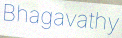
Bhagavathy